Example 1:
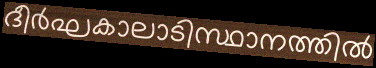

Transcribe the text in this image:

ദീർഘകാലാടിസ്ഥാനത്തിൽ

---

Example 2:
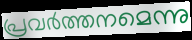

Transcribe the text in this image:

പ്രവർത്തനമെന്നു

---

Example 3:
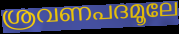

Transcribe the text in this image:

ശ്രവണപദമൂലേ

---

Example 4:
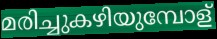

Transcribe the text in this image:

മരിച്ചുകഴിയുമ്പോള്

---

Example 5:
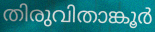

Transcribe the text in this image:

തിരുവിതാങ്കൂർ